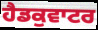
ਹੈਡਕੁਵਾਟਰ